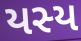
યસ્ય